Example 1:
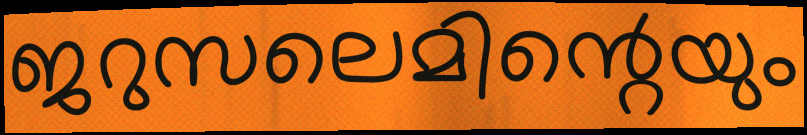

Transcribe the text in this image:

ജറുസലെമിന്റെയും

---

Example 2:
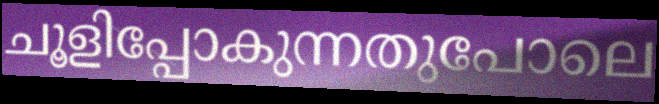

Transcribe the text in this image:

ചൂളിപ്പോകുന്നതുപോലെ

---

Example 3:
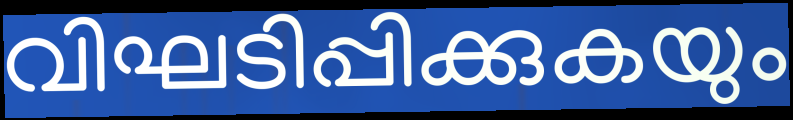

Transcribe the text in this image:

വിഘടിപ്പിക്കുകയും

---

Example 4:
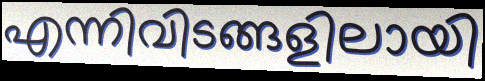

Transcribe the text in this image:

എന്നിവിടങ്ങളിലായി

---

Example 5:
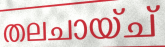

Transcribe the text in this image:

തലചായ്ച്